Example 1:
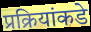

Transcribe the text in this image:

प्रक्रियांकडे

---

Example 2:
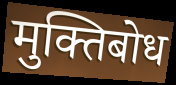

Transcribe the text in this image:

मुक्तिबोध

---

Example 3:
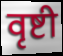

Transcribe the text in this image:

वृष्टी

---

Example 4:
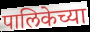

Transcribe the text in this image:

पालिकेच्या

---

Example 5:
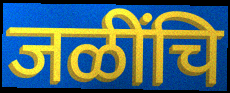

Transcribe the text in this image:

जळींचि